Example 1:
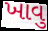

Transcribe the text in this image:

ખાવુ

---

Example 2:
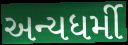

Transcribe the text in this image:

અન્યધર્મી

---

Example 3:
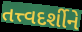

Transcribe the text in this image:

તત્ત્વદર્શીને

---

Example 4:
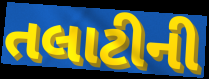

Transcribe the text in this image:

તલાટીની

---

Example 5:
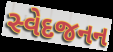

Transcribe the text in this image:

સ્વેદજનન